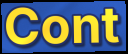
Cont